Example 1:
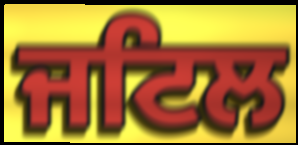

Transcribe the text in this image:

ਜਟਿਲ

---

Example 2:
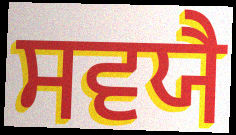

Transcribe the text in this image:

ਸਵਯੈ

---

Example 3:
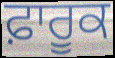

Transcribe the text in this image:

ਫ਼ਾਰੂਕ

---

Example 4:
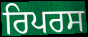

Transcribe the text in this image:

ਰਿਪਰਸ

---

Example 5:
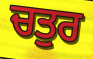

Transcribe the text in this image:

ਚਤੁਰ